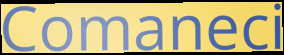
Comaneci